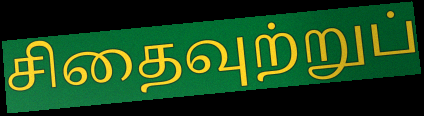
சிதைவுற்றுப்